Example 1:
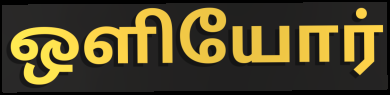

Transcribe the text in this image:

ஒளியோர்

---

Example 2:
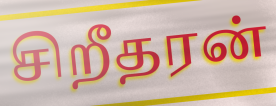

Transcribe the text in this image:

சிறீதரன்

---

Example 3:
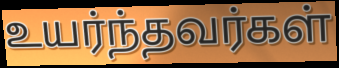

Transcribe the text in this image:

உயர்ந்தவர்கள்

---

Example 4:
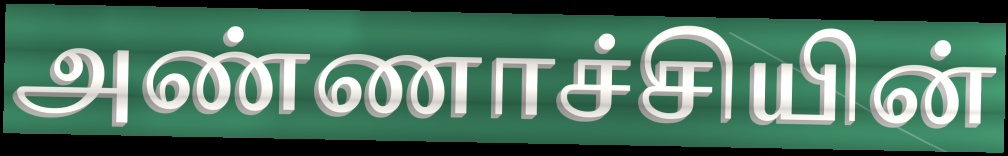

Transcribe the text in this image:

அண்ணாச்சியின்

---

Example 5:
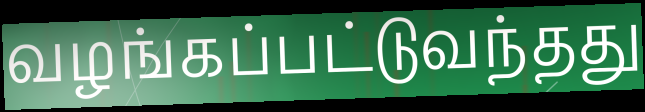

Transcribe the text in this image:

வழங்கப்பட்டுவந்தது